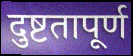
दुष्टतापूर्ण